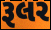
રૂલર